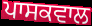
ਪਾਸਕਵਾਲ